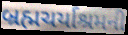
બ્રહ્મચર્યાશ્રમની